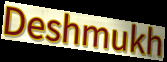
Deshmukh